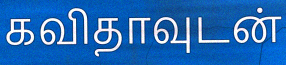
கவிதாவுடன்